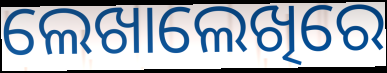
ଲେଖାଲେଖିରେ